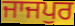
ਜਾਜਪੁਰ